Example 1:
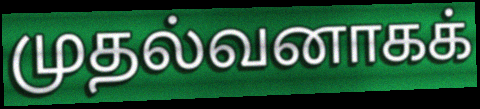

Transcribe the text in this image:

முதல்வனாகக்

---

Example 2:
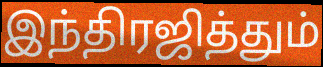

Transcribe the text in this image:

இந்திரஜித்தும்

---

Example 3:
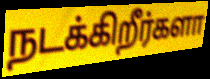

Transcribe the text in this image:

நடக்கிறீர்களா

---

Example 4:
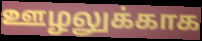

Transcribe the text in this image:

ஊழலுக்காக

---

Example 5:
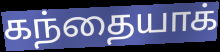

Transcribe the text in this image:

கந்தையாக்